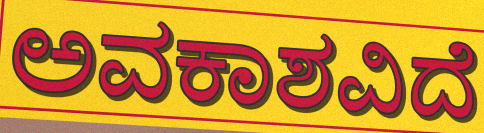
ಅವಕಾಶವಿದೆ